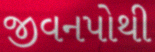
જીવનપોથી